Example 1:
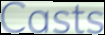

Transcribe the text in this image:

Casts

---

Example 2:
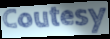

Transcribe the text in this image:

Coutesy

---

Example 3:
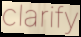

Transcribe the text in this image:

clarify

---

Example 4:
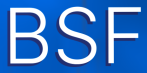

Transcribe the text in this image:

BSF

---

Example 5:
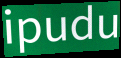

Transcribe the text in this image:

ipudu